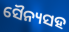
ସୈନ୍ୟସହ